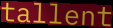
tallent